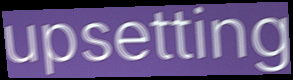
upsetting